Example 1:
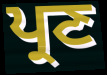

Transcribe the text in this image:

ਪ੍ਰਣ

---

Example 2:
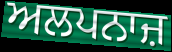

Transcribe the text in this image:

ਅਲਪਨਾਜ਼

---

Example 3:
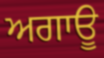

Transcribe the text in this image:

ਅਗਾਊ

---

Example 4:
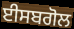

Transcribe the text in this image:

ਈਸਬਗੋਲ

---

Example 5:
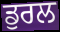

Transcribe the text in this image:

ਡੁਰਲ